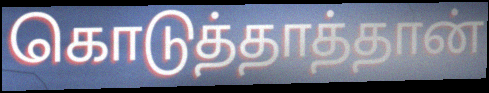
கொடுத்தாத்தான்